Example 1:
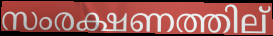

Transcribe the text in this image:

സംരക്ഷണത്തില്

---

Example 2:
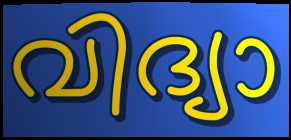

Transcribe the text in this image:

വിദ്യാ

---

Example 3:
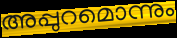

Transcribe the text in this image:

അപ്പുറമൊന്നും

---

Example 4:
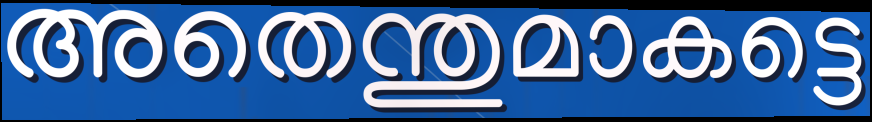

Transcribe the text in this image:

അതെന്തുമാകട്ടെ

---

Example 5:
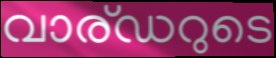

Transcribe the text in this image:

വാര്ഡറുടെ